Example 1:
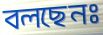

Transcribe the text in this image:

বলছেনঃ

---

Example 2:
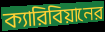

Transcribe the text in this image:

ক্যারিবিয়ানের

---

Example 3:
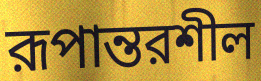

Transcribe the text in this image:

রূপান্তরশীল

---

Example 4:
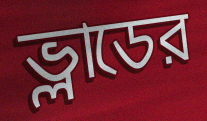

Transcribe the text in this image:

ভ্লাডের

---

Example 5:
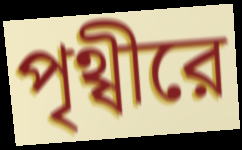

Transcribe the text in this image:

পৃথ্বীরে